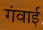
गंवाई